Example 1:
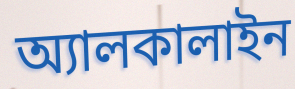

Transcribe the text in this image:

অ্যালকালাইন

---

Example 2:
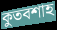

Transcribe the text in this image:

কুতবশাহ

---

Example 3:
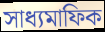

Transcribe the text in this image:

সাধ্যমাফিক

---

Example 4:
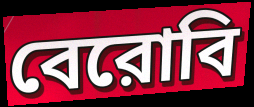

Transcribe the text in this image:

বেরোবি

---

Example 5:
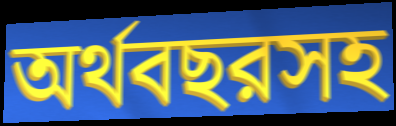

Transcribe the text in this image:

অর্থবছরসহ